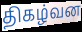
திகழ்வன